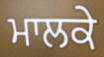
ਮਾਲਕੇ